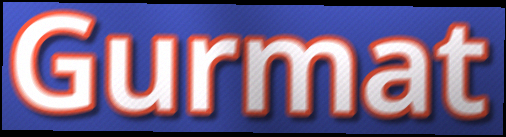
Gurmat